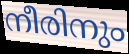
നീരിനും